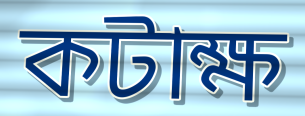
কটাক্ষ